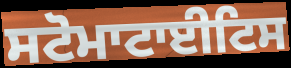
ਸਟੋਮਾਟਾਈਟਿਸ